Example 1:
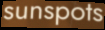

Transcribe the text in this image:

sunspots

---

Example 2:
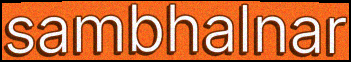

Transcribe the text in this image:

sambhalnar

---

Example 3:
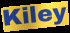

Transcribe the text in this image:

Kiley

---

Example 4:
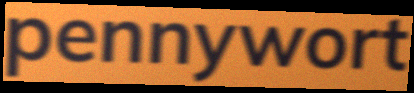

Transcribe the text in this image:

pennywort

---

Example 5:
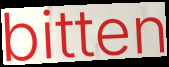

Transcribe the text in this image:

bitten